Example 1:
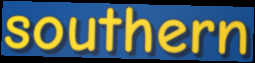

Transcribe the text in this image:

southern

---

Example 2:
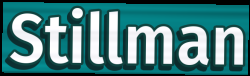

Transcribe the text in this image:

Stillman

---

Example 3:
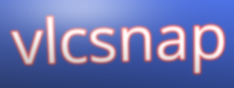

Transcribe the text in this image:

vlcsnap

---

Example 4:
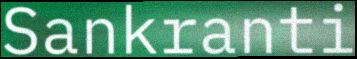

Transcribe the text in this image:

Sankranti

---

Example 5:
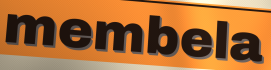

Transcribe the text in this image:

membela